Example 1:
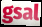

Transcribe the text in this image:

gsal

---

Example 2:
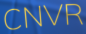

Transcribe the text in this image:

CNVR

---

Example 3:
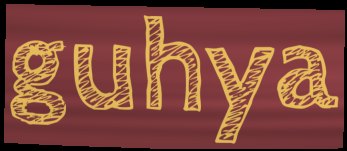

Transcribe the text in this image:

guhya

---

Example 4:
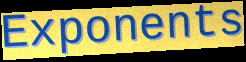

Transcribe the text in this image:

Exponents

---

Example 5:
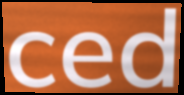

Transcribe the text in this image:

ced